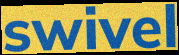
swivel